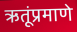
ऋतूंप्रमाणे